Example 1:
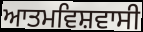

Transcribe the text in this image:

ਆਤਮਵਿਸ਼ਵਾਸੀ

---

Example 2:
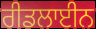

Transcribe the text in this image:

ਰੀਡਲਾਈਨ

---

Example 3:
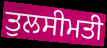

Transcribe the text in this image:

ਤੁਲਸੀਮਤੀ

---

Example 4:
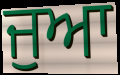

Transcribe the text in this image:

ਜੁਆ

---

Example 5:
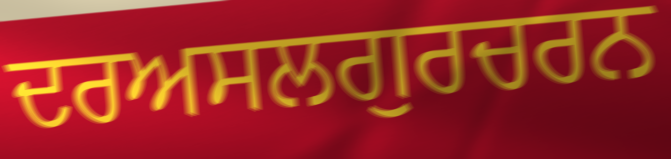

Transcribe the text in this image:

ਦਰਅਸਲਗੁਰਚਰਨ